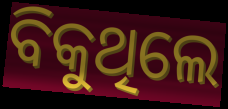
ବିକୁଥିଲେ